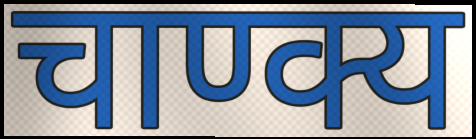
चाण्क्य